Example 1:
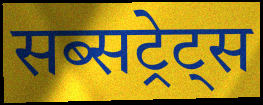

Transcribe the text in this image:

सब्सट्रेट्स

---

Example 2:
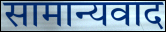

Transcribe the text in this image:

सामान्यवाद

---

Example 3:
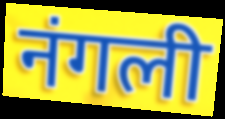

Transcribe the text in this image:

नंगली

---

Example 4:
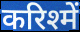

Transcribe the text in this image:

करिश्में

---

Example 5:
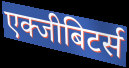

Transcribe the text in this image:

एक्जीबिटर्स